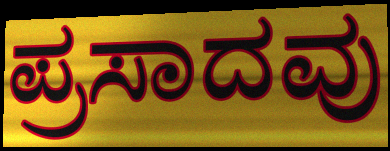
ಪ್ರಸಾದವು